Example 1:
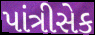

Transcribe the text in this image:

પાંત્રીસેક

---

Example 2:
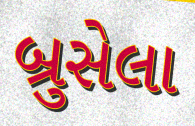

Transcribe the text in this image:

બ્રુસેલા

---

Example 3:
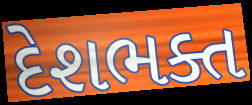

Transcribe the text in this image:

દેશભક્ત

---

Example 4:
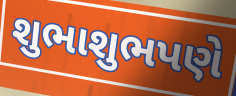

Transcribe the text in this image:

શુભાશુભપણે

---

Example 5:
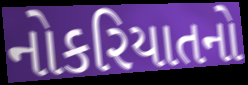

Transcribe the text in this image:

નોકરિયાતનો